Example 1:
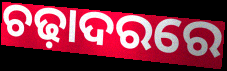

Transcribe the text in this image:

ଚଢ଼ାଦରରେ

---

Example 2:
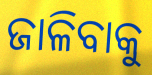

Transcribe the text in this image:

ଜାଳିବାକୁ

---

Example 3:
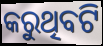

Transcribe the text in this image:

କରୁଥିବଟି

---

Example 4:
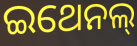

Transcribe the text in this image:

ଇଥେନଲ୍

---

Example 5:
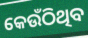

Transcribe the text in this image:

କେଉଁଠିଥିବ